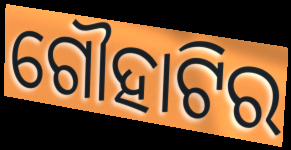
ଗୌହାଟିର